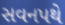
સવનપથે